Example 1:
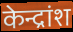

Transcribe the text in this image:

केन्द्रांश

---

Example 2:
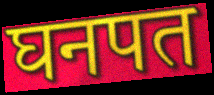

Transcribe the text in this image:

घनपत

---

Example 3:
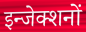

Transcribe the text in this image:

इन्जेक्शनों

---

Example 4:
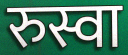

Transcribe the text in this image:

रुस्वा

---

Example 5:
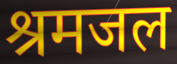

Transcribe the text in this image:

श्रमजल